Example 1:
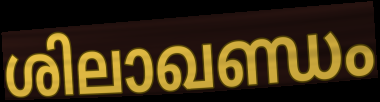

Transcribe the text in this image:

ശിലാഖണ്ഡം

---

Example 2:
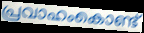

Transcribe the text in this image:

പ്രവാഹംകൊണ്ട്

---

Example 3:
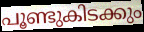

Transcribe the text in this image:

പൂണ്ടുകിടക്കും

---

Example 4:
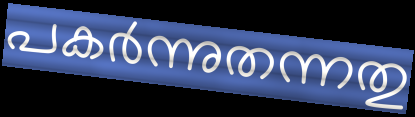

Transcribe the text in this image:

പകർന്നുതന്നതു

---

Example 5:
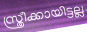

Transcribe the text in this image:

സ്ത്രീക്കായിട്ടല്ല